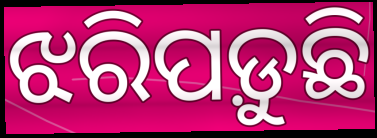
ଝରିପଡ଼ୁଛି